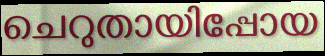
ചെറുതായിപ്പോയ